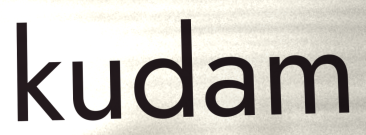
kudam